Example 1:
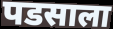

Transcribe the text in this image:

पडसाला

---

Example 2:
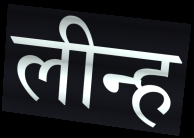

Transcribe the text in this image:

लीन्ह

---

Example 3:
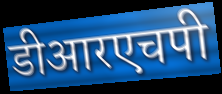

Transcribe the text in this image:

डीआरएचपी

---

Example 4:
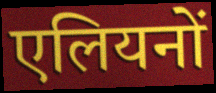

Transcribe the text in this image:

एलियनों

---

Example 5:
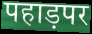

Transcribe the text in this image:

पहाड़पर